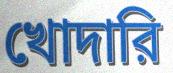
খোদারি